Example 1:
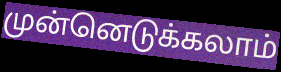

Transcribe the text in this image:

முன்னெடுக்கலாம்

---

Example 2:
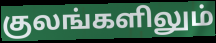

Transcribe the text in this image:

குலங்களிலும்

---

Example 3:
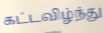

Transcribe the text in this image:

கட்டவிழ்ந்து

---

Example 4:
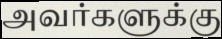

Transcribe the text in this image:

அவர்களுக்கு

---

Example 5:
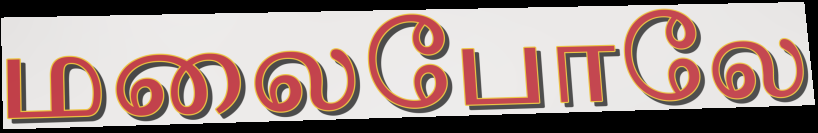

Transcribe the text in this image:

மலைபோலே